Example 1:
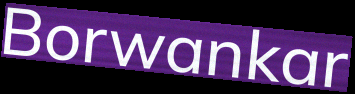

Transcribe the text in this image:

Borwankar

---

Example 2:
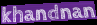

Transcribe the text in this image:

khandnan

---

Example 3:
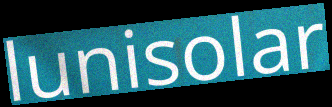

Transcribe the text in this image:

lunisolar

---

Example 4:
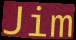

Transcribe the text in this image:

Jim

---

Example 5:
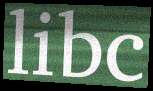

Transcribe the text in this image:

libc